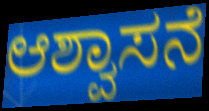
ಆಶ್ವಾಸನೆ